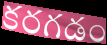
కరగడం